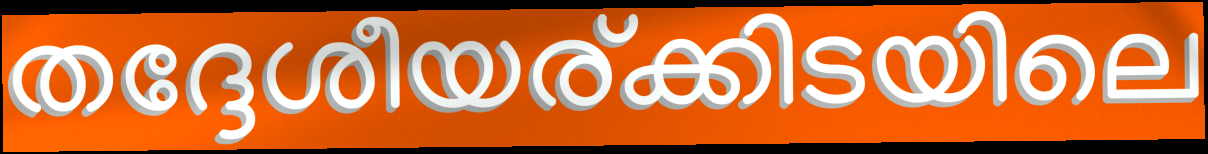
തദ്ദേശീയര്ക്കിടയിലെ